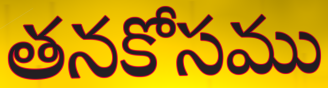
తనకోసము